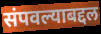
संपवल्याबद्दल